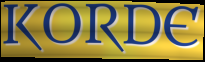
KORDE